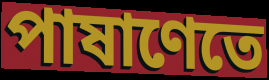
পাষাণেতে